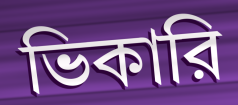
ভিকারি